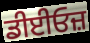
ਡੀਈਓਜ਼